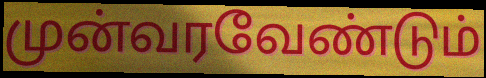
முன்வரவேண்டும்